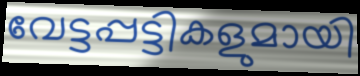
വേട്ടപ്പട്ടികളുമായി